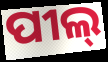
ପୀଲ୍